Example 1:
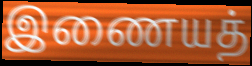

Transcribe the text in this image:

இணையத்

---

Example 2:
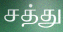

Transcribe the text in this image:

சத்து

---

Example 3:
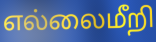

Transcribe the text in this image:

எல்லைமீறி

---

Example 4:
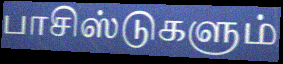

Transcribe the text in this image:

பாசிஸ்டுகளும்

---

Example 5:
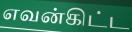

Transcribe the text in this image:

எவன்கிட்ட